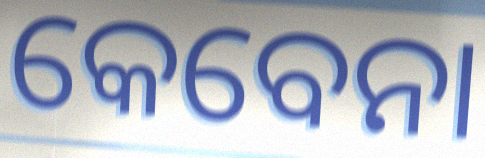
କେବେନା